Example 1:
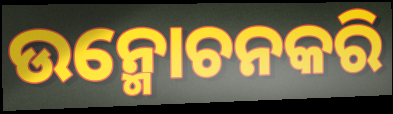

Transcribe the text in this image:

ଉନ୍ମୋଚନକରି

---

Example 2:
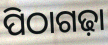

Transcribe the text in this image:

ପିଠାଗଢ଼ା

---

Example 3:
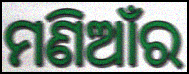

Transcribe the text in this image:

ମଣିଆଁର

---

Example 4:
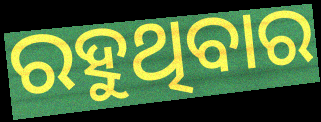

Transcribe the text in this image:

ରହୁଥିବାର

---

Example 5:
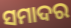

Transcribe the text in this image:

ସମାଦର